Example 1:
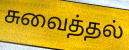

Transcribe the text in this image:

சுவைத்தல்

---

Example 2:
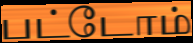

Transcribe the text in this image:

பட்டோம்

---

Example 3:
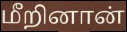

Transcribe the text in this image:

மீறினான்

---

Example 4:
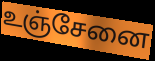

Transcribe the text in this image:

உஞ்சேனை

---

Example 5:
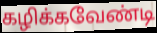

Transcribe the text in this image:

கழிக்கவேண்டி